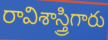
రావిశాస్త్రిగారు